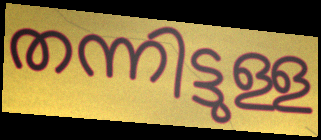
തന്നിട്ടുള്ള